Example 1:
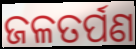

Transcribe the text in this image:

ଜଳତର୍ପଣ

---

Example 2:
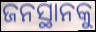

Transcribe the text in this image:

ଜନସ୍ଥାନକୁ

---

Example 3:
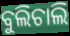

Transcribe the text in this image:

ବୁଲିଚାଲି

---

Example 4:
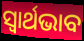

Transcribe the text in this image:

ସ୍ଵାର୍ଥଭାବ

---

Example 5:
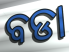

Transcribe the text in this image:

ବଡା